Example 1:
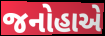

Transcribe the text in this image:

જનોહાએ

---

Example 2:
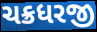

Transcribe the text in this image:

ચક્રધરજી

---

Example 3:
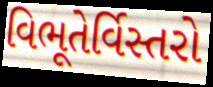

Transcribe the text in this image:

વિભૂતેર્વિસ્તરો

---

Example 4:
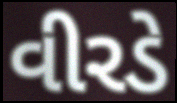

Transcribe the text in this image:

વીરડે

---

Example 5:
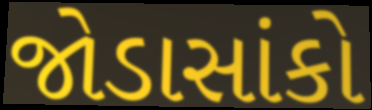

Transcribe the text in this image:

જોડાસાંકો